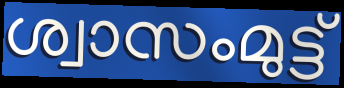
ശ്വാസംമുട്ട്